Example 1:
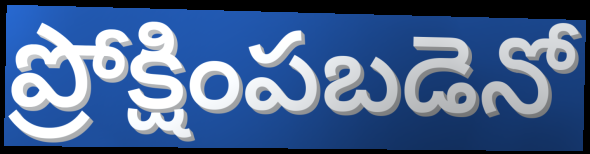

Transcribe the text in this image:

ప్రోక్షింపబడెనో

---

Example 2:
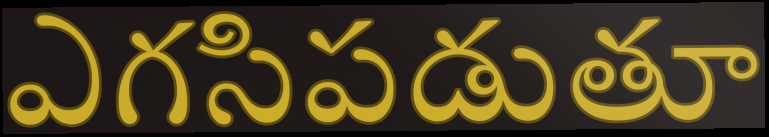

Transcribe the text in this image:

ఎగసిపడుతూ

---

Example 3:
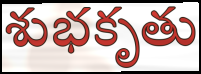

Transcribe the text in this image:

శుభకృతు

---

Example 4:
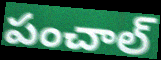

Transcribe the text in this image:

పంచాల్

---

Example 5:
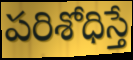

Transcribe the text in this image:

పరిశోధిస్తే